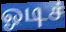
ஓடிச்